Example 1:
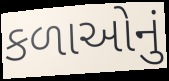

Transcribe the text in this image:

કળાઓનું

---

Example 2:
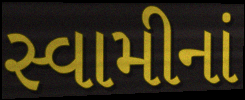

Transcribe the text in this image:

સ્વામીનાં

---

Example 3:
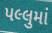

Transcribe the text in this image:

પલ્લુમાં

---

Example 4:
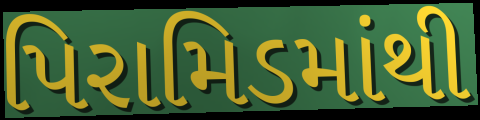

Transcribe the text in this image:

પિરામિડમાંથી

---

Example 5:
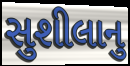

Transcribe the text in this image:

સુશીલાનુ